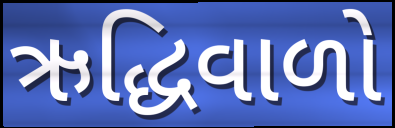
ઋદ્ધિવાળો